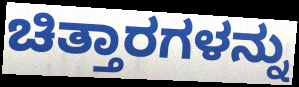
ಚಿತ್ತಾರಗಳನ್ನು